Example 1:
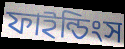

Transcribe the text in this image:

ফাইন্ডিংস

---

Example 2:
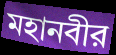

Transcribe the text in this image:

মহানবীর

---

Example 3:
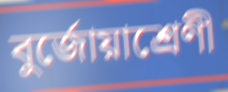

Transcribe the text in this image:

বুর্জোয়াশ্রেণী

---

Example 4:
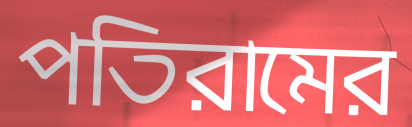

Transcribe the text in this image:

পতিরামের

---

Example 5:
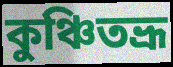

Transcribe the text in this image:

কুঞ্চিতভ্রূ